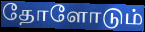
தோளோடும்